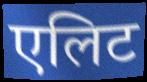
एलिट